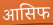
आसिफ